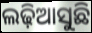
ଲଢ଼ିଆସୁଛି